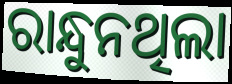
ରାନ୍ଧୁନଥିଲା